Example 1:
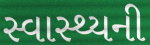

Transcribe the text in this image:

સ્વાસ્થ્યની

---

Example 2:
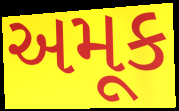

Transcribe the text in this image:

અમૂક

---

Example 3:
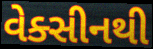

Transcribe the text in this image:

વેક્સીનથી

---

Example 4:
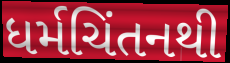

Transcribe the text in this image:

ધર્મચિંતનથી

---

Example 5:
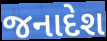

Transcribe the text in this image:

જનાદેશ